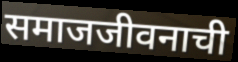
समाजजीवनाची